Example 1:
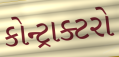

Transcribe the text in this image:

કોન્ટ્રાક્ટરો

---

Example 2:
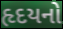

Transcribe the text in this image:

હૃદયનો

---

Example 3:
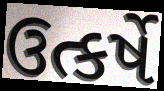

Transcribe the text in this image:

ઉત્કર્ષે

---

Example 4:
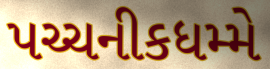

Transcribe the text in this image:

પચ્ચનીકધમ્મે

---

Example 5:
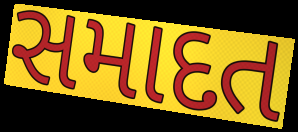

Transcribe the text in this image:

સમાદત